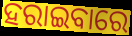
ହରାଇବାରେ